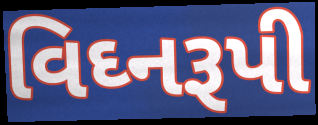
વિઘ્નરૂપી